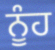
ਨੂੰਹ